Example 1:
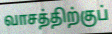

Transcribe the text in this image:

வாசத்திற்குப்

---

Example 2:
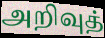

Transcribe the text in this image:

அறிவுத்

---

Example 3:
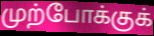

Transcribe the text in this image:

முற்போக்குக்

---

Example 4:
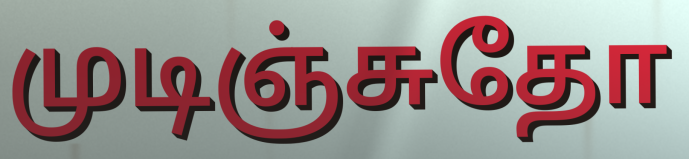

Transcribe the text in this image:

முடிஞ்சுதோ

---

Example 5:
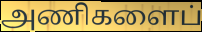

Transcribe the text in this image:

அணிகளைப்